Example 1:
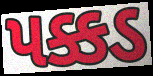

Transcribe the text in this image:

પક્કડ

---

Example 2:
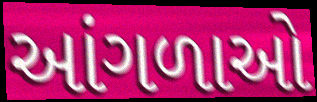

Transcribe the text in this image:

આંગળાઓ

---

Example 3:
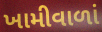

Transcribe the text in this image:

ખામીવાળાં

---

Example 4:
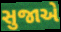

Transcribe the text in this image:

સુજાએ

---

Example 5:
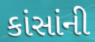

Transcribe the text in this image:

કાંસાંની